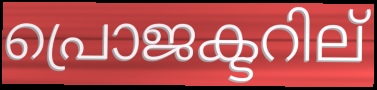
പ്രൊജക്ടറില്